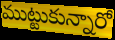
ముట్టుకున్నారో